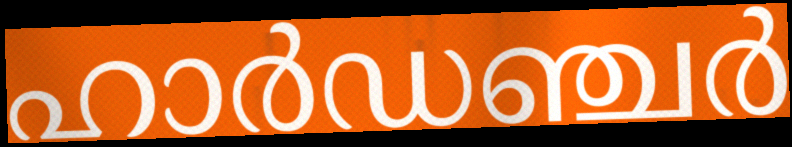
ഹാർഡഞ്ചർ